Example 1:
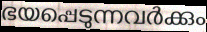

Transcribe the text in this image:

ഭയപ്പെടുന്നവർക്കും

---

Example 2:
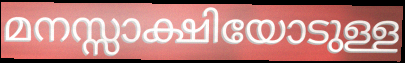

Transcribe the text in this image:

മനസ്സാക്ഷിയോടുള്ള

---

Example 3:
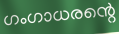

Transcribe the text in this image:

ഗംഗാധരന്റെ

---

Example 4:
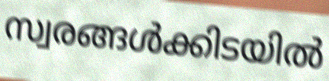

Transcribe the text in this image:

സ്വരങ്ങൾക്കിടയിൽ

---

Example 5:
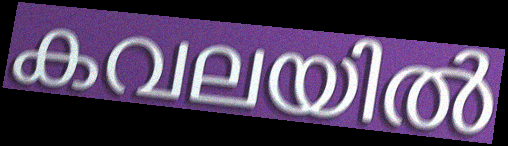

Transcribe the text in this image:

കവലയിൽ